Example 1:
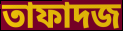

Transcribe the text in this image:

তাফাদজ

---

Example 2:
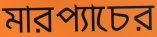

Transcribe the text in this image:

মারপ্যাচের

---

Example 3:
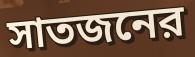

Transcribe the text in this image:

সাতজনের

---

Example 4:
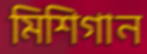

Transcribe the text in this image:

মিশিগান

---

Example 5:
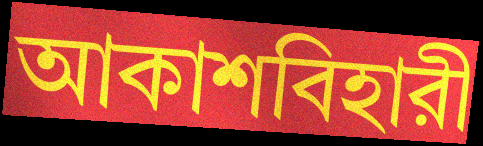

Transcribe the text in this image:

আকাশবিহারী